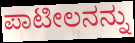
ಪಾಟೀಲನನ್ನು